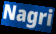
Nagri